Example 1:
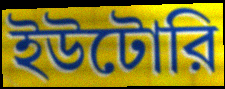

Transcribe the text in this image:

ইউটোরি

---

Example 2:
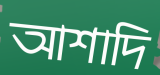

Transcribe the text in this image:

আশাদি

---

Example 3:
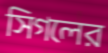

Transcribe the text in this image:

সিগলের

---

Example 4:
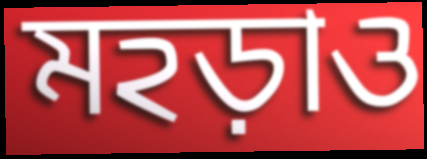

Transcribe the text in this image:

মহড়াও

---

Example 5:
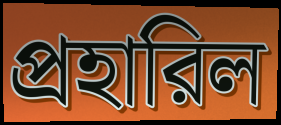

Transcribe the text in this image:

প্রহারিল